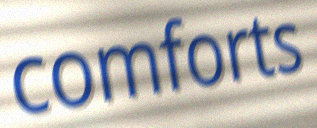
comforts